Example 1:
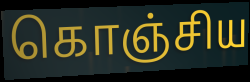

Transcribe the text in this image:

கொஞ்சிய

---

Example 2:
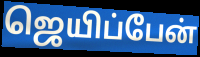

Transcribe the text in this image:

ஜெயிப்பேன்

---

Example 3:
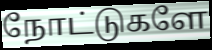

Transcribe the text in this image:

நோட்டுகளே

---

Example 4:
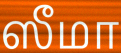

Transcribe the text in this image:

ஸீமா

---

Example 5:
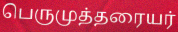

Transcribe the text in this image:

பெருமுத்தரையர்